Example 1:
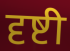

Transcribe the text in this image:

दृष्टी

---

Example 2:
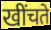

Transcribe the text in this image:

खींचते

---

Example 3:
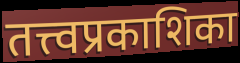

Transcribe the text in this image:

तत्त्वप्रकाशिका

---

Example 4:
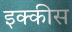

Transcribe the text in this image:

इक्‍कीस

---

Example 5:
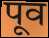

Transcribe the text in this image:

पूव